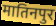
मातिनपुर